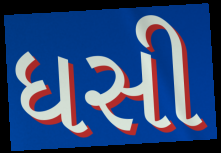
ધસી